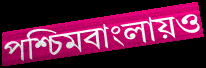
পশ্চিমবাংলায়ও